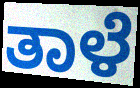
ತಾಳೆ